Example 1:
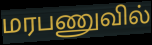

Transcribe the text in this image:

மரபணுவில்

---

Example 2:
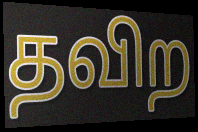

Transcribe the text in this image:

தவிற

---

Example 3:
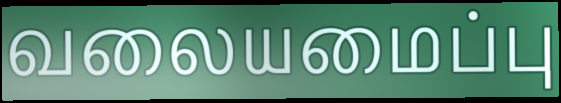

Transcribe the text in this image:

வலையமைப்பு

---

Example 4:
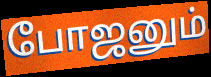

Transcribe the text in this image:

போஜனும்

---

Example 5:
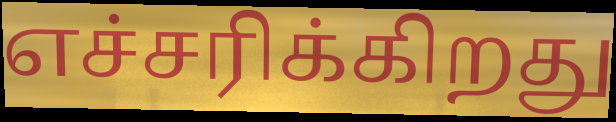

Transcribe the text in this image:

எச்சரிக்கிறது